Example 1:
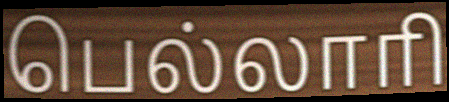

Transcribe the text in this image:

பெல்லாரி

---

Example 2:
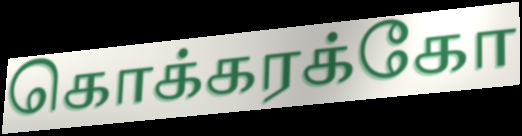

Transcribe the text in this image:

கொக்கரக்கோ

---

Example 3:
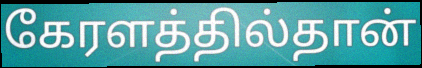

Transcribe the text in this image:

கேரளத்தில்தான்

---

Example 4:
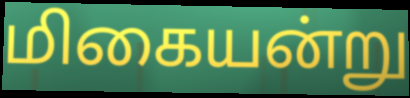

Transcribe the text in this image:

மிகையன்று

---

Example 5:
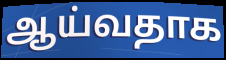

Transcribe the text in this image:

ஆய்வதாக